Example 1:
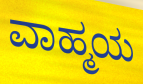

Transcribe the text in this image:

ವಾಹ್ಮಯ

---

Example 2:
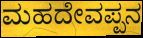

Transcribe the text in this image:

ಮಹದೇವಪ್ಪನ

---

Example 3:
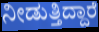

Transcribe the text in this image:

ನೀಡುತ್ತಿದ್ದಾರೆ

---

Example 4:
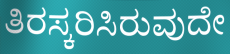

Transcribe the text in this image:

ತಿರಸ್ಕರಿಸಿರುವುದೇ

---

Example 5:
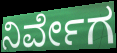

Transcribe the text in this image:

ನಿರ್ವೇಗ